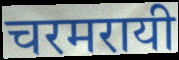
चरमरायी